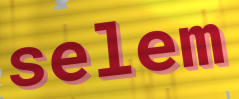
selem